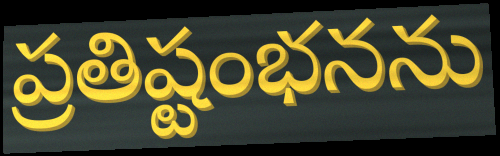
ప్రతిష్టంభనను